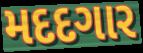
મદદગાર